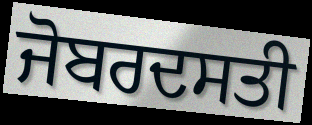
ਜੋਬਰਦਸਤੀ